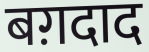
बग़दाद